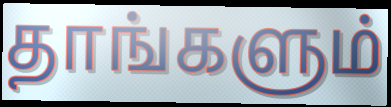
தாங்களும்